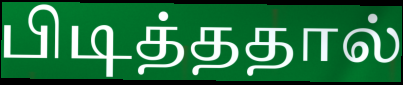
பிடித்ததால்